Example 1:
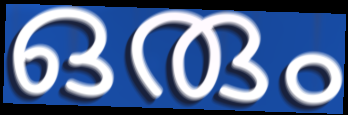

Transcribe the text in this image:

ഒരും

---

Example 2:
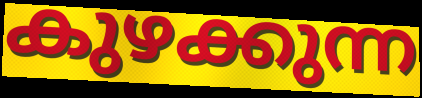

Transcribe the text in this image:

കുഴക്കുന്ന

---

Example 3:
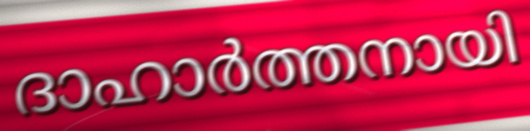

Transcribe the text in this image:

ദാഹാർത്തനായി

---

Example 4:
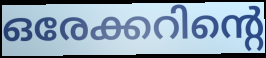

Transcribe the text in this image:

ഒരേക്കറിന്റെ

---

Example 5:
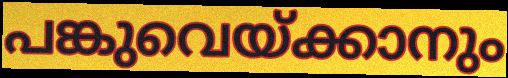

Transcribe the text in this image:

പങ്കുവെയ്ക്കാനും